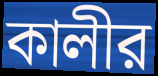
কালীর